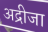
अद्रीजा